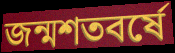
জন্মশতবর্ষে